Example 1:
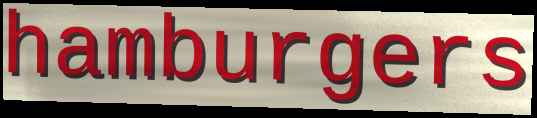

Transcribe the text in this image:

hamburgers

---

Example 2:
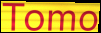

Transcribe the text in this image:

Tomo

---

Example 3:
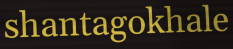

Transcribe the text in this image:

shantagokhale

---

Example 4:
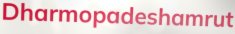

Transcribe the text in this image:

Dharmopadeshamrut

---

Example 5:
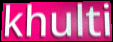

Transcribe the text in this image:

khulti